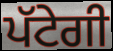
ਪੱਟੇਗੀ